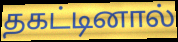
தகட்டினால்